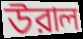
উরাল